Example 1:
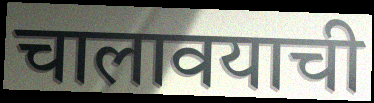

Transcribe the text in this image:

चालावयाची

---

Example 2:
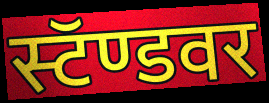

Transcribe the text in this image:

स्टॅण्डवर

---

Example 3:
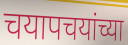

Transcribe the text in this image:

चयापचयांच्या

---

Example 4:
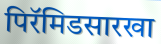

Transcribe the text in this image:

पिरॅमिडसारखा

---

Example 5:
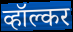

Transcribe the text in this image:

व्हॉल्कर